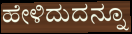
ಹೇಳಿದುದನ್ನೂ